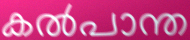
കൽപാന്ത